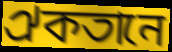
ঐকতানে